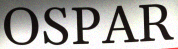
OSPAR